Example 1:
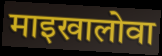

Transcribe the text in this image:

माइखालोवा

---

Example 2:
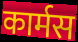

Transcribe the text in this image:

कार्मस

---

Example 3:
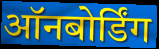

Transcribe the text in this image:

ऑनबोर्डिंग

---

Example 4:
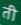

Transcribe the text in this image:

ती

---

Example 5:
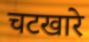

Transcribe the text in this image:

चटखारे